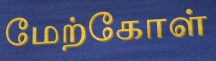
மேற்கோள்